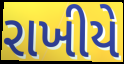
રાખીયે